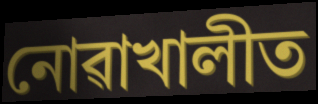
নোৱাখালীত